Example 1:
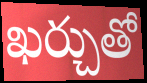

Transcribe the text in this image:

ఖర్చుతో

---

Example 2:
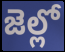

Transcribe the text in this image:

జెల్లో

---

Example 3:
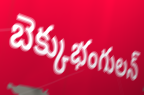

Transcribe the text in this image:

బెక్కుభంగులన్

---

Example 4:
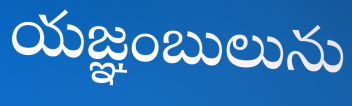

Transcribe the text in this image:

యజ్ఞంబులును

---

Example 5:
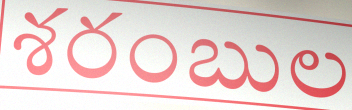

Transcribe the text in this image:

శరంబుల